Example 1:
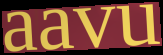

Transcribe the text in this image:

aavu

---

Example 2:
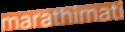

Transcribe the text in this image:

marathimati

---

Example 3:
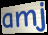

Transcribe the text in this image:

amj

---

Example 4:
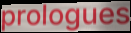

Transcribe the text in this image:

prologues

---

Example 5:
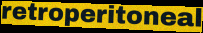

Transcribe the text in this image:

retroperitoneal